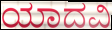
ಯಾದವಿ